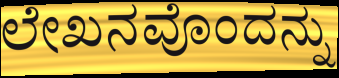
ಲೇಖನವೊಂದನ್ನು